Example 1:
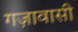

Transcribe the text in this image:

गज़ावासी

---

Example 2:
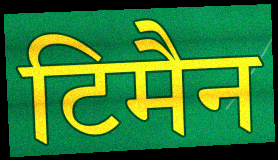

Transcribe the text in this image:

टिमैन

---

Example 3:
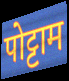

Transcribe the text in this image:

पोट्टाम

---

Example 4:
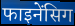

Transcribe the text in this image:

फाइनेंसिग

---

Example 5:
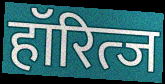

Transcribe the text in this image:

हॉरित्ज